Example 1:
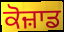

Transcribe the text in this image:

ਕੋਜ਼ਾਡ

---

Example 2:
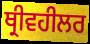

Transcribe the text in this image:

ਥ੍ਰੀਵਹੀਲਰ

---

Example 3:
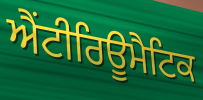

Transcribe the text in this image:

ਐਂਟੀਰਿਊਮੈਟਿਕ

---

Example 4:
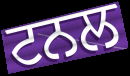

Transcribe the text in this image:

ਟਨਲ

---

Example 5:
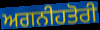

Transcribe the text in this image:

ਅਗਨੀਹਤੋਰੀ